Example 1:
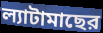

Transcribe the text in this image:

ল্যাটামাছের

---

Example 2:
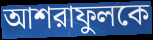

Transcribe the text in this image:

আশরাফুলকে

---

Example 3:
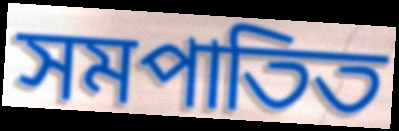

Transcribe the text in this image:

সমপাতিত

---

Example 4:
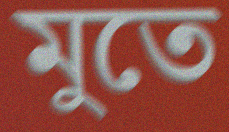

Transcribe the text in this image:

মুতে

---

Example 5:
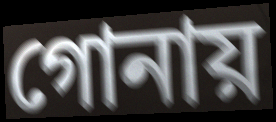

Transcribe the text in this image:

গোনায়